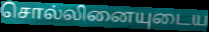
சொல்லினையுடைய